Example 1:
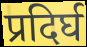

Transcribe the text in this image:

प्रदिर्घ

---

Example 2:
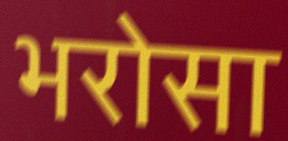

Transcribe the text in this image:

भरोसा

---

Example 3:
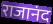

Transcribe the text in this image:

राजानंद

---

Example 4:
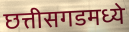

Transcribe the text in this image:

छत्तीसगडमध्ये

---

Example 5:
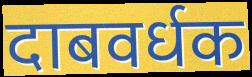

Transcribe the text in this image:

दाबवर्धक